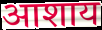
आशाय